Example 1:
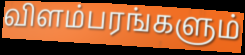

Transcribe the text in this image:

விளம்பரங்களும்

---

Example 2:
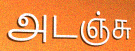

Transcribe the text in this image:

அடஞ்சு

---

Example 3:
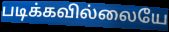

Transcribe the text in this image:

படிக்கவில்லையே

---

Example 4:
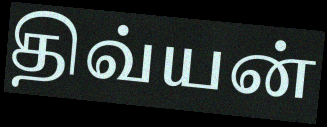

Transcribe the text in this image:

திவ்யன்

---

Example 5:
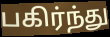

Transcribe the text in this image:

பகிர்ந்து